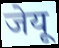
जेयू